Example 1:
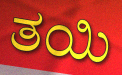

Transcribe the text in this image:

ತಯಿ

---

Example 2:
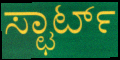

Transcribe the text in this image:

ಸ್ಟಾರ್ಟ್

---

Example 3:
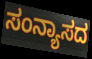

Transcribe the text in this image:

ಸಂನ್ಯಾಸದ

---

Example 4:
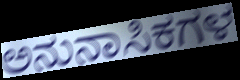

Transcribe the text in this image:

ಅನುನಾಸಿಕಗಳ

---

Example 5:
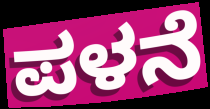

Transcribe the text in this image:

ಪಳನೆ